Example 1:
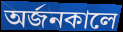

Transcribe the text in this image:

অর্জনকালে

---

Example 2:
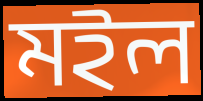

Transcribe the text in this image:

মইল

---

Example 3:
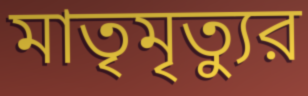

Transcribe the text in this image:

মাতৃমৃত্যুর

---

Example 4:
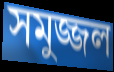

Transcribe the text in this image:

সমুজ্জল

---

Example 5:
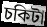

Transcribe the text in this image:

চকিটা